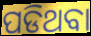
ପଡିଥବା